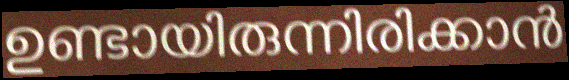
ഉണ്ടായിരുന്നിരിക്കാൻ